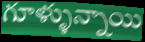
గూళ్ళున్నాయి